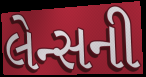
લેન્સની